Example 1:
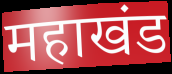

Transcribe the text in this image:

महाखंड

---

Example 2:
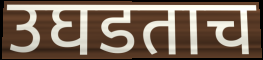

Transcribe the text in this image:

उघडताच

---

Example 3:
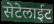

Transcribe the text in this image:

सेटेलाईट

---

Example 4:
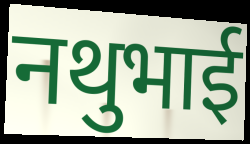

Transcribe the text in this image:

नथुभाई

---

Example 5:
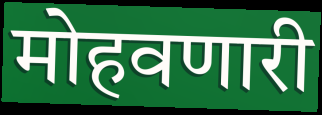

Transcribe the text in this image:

मोहवणारी